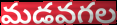
మడవగల